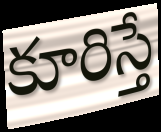
కూరిస్తే